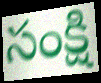
సంక్షి